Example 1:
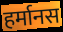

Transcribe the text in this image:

हर्मानस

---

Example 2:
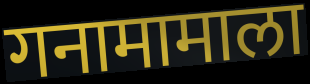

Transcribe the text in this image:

गनामामाला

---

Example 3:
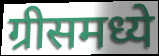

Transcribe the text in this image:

ग्रीसमध्ये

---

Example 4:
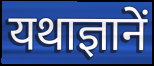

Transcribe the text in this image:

यथाज्ञानें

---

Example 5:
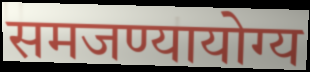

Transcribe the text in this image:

समजण्यायोग्य